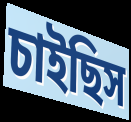
চাইছিস